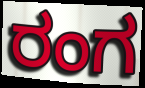
ರಂಗ